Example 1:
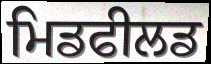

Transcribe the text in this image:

ਮਿਡਫੀਲਡ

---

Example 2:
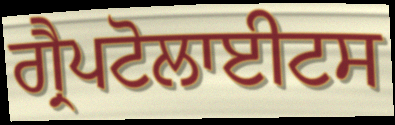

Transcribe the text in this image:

ਗ੍ਰੈਪਟੋਲਾਈਟਸ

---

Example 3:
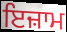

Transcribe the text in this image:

ਇਜ਼ਾਮ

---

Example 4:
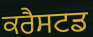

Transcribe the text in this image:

ਕਰੈਸਟਡ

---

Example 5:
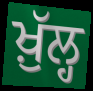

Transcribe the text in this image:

ਖ਼ੁੱਲ੍ਹ